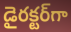
డైరక్టర్‌గా